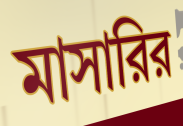
মাসারির